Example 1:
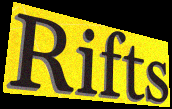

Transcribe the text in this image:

Rifts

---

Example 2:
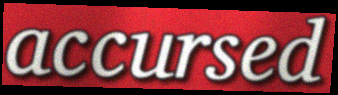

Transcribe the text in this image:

accursed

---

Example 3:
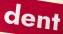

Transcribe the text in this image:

dent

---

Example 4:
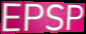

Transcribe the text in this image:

EPSP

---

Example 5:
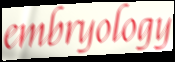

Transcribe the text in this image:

embryology